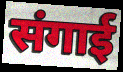
संगाई